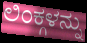
ಲಿಂಕ್ಗಳನ್ನು